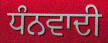
ਧੰਨਵਾਦੀ